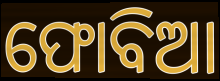
ଫୋବିଆ